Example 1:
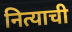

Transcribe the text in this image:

नित्याची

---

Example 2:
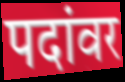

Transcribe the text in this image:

पदांवर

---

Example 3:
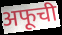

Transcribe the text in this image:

अफूची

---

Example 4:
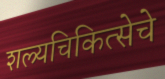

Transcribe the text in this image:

शल्यचिकित्सेचे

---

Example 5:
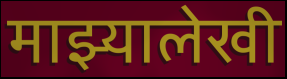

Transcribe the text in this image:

माझ्यालेखी